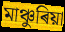
মাঞ্চুৰিয়া